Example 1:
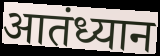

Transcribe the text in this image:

आतंध्यान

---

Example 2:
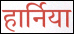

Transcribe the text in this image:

हार्निया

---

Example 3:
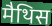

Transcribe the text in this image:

मैथिस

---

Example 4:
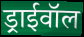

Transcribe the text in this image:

ड्राईवॉल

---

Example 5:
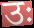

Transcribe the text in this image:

उः